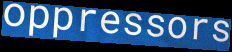
oppressors